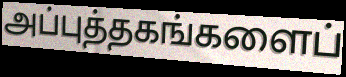
அப்புத்தகங்களைப்